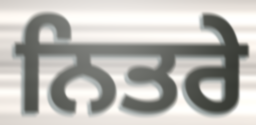
ਨਿਤਰੇ